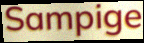
Sampige